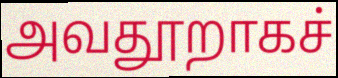
அவதூறாகச்